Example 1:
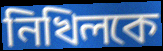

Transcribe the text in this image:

নিখিলকে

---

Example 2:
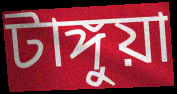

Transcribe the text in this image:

টাঙ্গুয়া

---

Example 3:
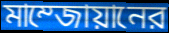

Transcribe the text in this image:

মাম্জোয়ানের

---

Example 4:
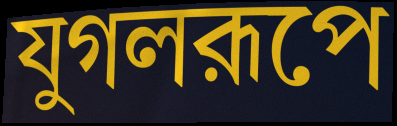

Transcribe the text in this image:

যুগলরূপে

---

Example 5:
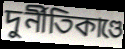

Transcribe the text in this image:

দুর্নীতিকাণ্ডে